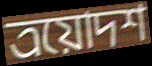
ত্রয়োদশ